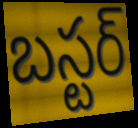
బస్టర్